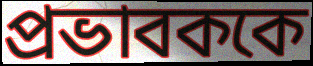
প্রভাবককে